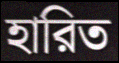
হারিত